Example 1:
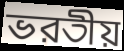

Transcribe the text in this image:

ভরতীয়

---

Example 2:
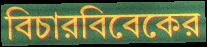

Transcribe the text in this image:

বিচারবিবেকের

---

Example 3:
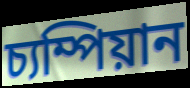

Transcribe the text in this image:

চ্যম্পিয়ান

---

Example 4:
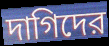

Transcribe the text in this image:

দাগিদের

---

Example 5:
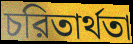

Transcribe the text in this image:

চরিতার্থতা